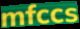
mfccs